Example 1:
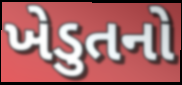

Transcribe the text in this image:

ખેડુતનો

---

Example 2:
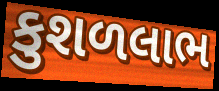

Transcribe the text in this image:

કુશળલાભ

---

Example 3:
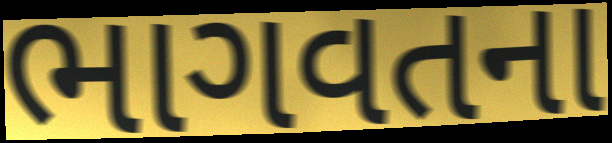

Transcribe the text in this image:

ભાગવતના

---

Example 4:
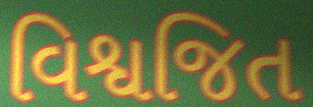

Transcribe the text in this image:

વિશ્વજિત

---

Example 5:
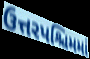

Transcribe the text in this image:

ઉત્તરપશ્ચિમમાં